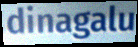
dinagalu